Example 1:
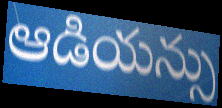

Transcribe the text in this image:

ఆడియన్సు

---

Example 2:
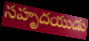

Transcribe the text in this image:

సహృదయుడు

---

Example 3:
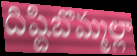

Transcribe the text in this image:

దిష్టిబొమ్మల్లా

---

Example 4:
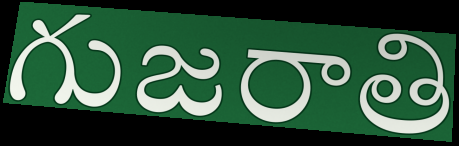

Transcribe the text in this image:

గుజరాతి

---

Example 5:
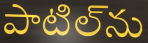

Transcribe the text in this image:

పాటిల్‌ను